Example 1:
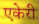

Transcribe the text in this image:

एकेरी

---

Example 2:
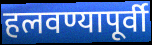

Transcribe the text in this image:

हलवण्यापूर्वी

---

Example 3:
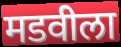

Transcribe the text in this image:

मडवीला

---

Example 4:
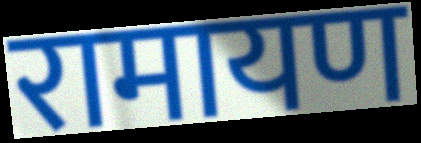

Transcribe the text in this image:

रामायण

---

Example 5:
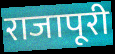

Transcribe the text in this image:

राजापूरी